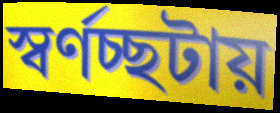
স্বর্ণচ্ছটায়